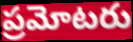
ప్రమోటరు